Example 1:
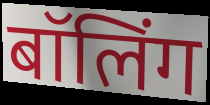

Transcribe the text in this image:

बॉलिंग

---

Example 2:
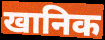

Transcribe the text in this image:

खानिक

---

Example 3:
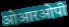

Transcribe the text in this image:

ओआरओपी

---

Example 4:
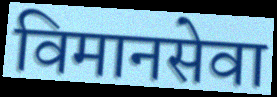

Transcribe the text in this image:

विमानसेवा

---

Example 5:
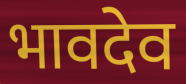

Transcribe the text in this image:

भावदेव